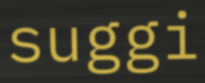
suggi